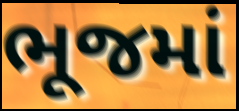
ભૂજમાં